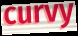
curvy